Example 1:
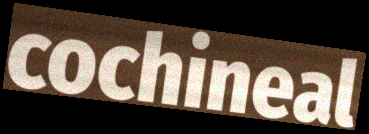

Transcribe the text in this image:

cochineal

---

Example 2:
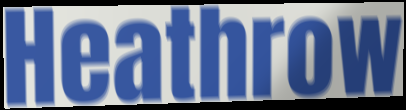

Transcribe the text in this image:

Heathrow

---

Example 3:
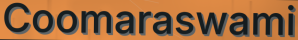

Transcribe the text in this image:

Coomaraswami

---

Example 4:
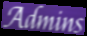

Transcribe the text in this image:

Admins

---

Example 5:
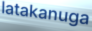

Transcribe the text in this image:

latakanuga